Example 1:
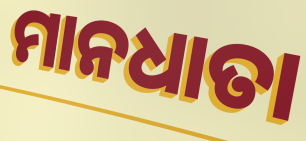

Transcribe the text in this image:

ମାନଧାତା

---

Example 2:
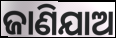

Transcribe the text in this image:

ଜାଣିଯାଅ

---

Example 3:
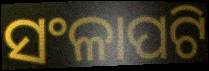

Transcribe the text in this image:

ସଂଳାପଟି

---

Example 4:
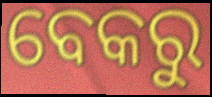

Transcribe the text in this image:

ବେକରୁ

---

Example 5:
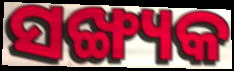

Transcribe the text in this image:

ସଙ୍ଖ୍ୟକ